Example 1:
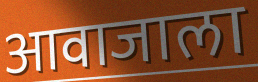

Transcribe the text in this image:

आवाजाला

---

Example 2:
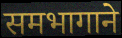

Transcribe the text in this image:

समभागाने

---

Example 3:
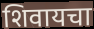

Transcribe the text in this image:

शिवायचा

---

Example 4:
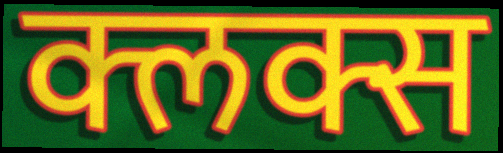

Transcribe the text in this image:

क्लक्स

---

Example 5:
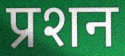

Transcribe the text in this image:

प्रशन